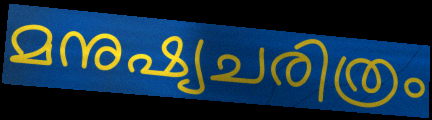
മനുഷ്യചരിത്രം